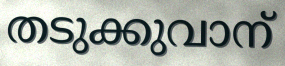
തടുക്കുവാന്